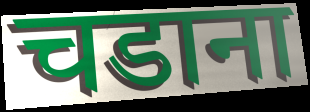
चडाना